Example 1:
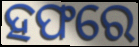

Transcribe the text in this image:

ହଫରେ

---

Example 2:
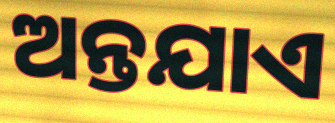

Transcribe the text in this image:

ଅନ୍ତଯାଏ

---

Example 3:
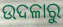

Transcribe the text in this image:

ଉଦଳାରୁ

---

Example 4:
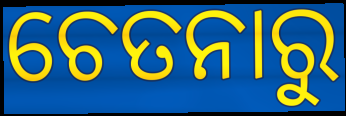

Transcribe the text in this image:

ଚେତନାରୁ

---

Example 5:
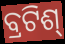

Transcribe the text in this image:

ବ୍ରଟିଶ୍